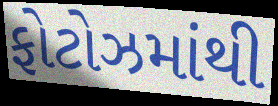
ફોટોઝમાંથી